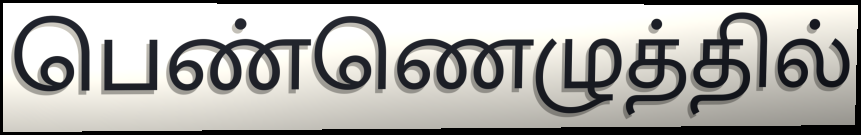
பெண்ணெழுத்தில்